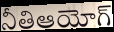
నీతిఆయోగ్